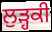
ਲੁੜ੍ਹਕੀ